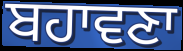
ਬਹਾਵਣਾ